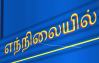
எந்நிலையில்